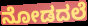
ನೋಡದಲೆ